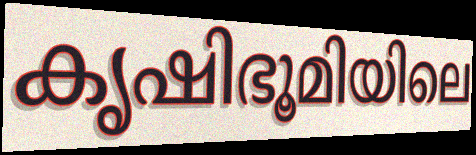
കൃഷിഭൂമിയിലെ